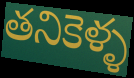
తనికెళ్ళ